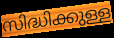
സിദ്ധിക്കുള്ള